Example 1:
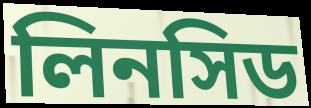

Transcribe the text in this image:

লিনসিড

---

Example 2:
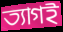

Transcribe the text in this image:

ত্যাগই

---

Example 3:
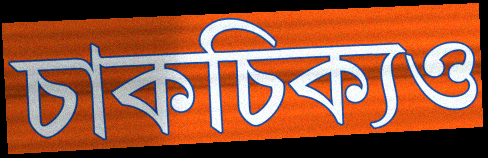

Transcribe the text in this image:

চাকচিক্যও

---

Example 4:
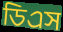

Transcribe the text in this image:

ডিএস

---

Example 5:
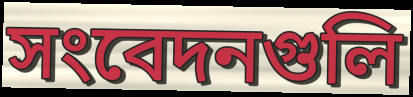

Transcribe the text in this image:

সংবেদনগুলি